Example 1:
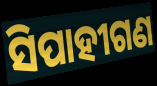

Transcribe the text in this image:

ସିପାହୀଗଣ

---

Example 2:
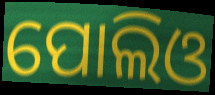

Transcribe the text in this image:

ପୋଲିଓ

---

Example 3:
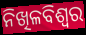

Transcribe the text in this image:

ନିଖିଳବିଶ୍ୱର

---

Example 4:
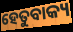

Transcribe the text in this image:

ହେତୁବାକ୍ୟ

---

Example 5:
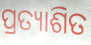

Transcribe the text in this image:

ପ୍ରତ୍ୟାଶିତ